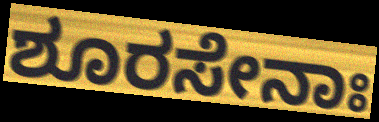
ಶೂರಸೇನಾಃ